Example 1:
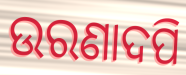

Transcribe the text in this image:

ଉରଣାଦପି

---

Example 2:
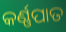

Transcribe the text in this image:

କର୍ଣ୍ଣପାତ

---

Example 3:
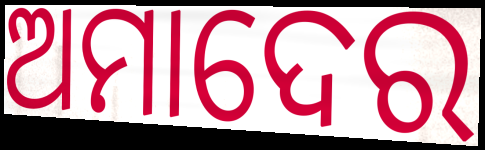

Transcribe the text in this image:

ଅମାଦେର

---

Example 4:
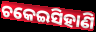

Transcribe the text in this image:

ଚକେଇସିହାଣି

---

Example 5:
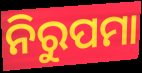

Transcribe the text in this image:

ନିରୁପମା